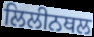
ਲਿਲੀਨਥਲ